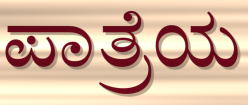
ಪಾತ್ರೆಯ